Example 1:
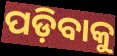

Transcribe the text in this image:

ପଡ଼ିବାକୁ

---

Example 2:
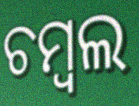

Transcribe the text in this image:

ଚମ୍ବଲ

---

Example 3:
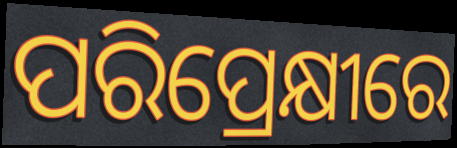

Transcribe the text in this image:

ପରିପ୍ରେକ୍ଷୀରେ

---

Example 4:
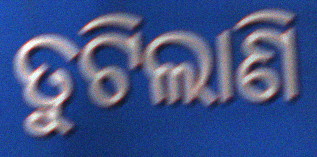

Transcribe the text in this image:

ତୁଟିଲାଣି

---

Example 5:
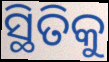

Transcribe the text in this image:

ସ୍ଥିତିକୁ